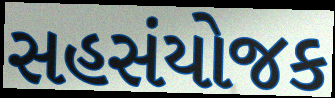
સહસંયોજક